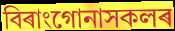
বিৰাংগোনাসকলৰ